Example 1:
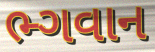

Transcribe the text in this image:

ભ્ગવાન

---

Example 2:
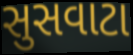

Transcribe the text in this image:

સુસવાટા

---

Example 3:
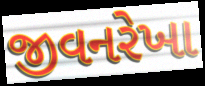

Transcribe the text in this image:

જીવનરેખા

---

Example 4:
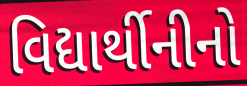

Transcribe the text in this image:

વિદ્યાર્થીનીનો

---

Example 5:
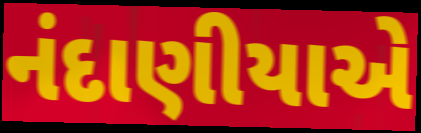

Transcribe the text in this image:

નંદાણીયાએ